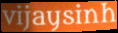
vijaysinh